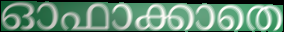
ഓഫാക്കാതെ